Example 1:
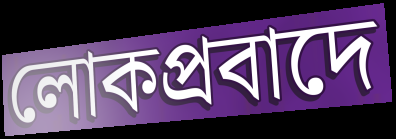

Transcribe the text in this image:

লোকপ্রবাদে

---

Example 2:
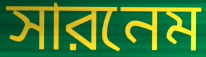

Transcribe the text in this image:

সারনেম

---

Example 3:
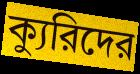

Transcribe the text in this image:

ক্যুরিদের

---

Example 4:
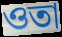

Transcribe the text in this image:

ওতা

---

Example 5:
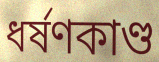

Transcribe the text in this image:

ধর্ষণকাণ্ড